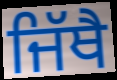
ਜਿੱਥੈ